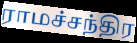
ராமச்சந்திர